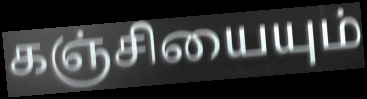
கஞ்சியையும்